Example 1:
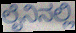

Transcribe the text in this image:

ಲೈನಿನಲ್ಲಿ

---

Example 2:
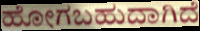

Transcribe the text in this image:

ಹೋಗಬಹುದಾಗಿದೆ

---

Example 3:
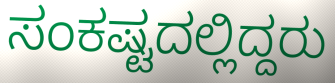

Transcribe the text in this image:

ಸಂಕಷ್ಟದಲ್ಲಿದ್ದರು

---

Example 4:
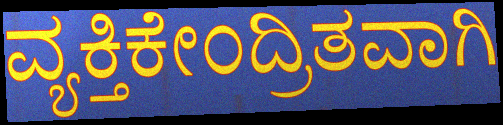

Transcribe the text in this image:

ವ್ಯಕ್ತಿಕೇಂದ್ರಿತವಾಗಿ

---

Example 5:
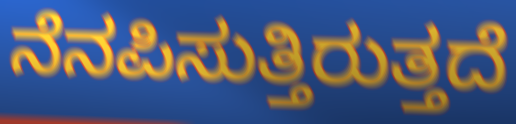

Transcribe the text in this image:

ನೆನಪಿಸುತ್ತಿರುತ್ತದೆ